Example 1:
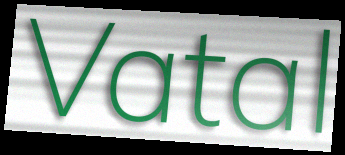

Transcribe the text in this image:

Vatal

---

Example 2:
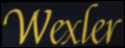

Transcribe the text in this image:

Wexler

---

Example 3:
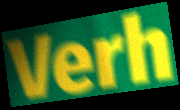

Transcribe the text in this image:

Verh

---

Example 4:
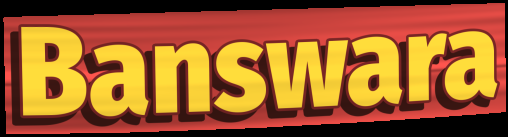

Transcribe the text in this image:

Banswara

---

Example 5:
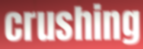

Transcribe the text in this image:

crushing